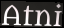
Atni